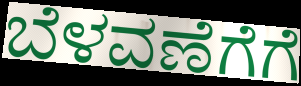
ಬೆಳವಣೆಗೆಗೆ